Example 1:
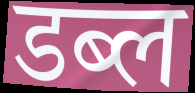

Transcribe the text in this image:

डब्ल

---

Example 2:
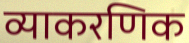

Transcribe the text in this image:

व्याकरणिक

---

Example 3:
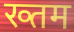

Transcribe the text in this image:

ख्तम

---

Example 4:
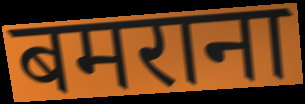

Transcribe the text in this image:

बमराना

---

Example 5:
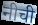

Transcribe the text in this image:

नीची